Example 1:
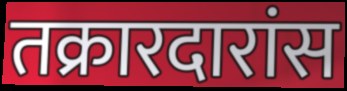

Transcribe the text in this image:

तक्रारदारांस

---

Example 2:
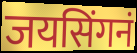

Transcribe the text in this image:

जयसिंगनं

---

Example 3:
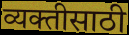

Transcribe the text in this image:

व्यक्तीसाठी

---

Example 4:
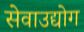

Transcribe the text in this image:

सेवाउद्योग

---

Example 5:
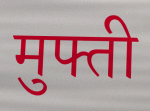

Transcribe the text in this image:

मुफ्ती